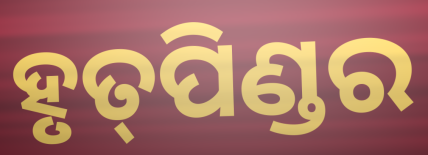
ହୃତ୍‍ପିଣ୍ଡର